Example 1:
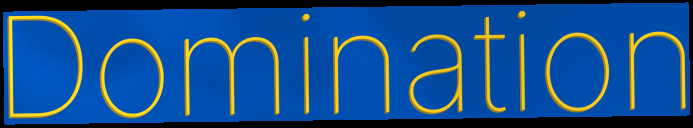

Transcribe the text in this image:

Domination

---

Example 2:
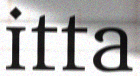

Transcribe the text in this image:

itta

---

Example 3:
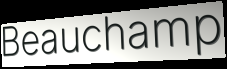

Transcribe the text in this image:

Beauchamp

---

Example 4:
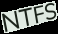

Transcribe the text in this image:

NTFS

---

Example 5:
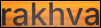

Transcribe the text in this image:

rakhva